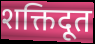
शक्तिदूत